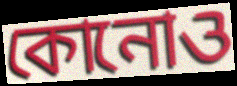
কোনোও